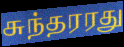
சுந்தரரது